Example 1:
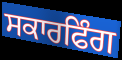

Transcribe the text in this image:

ਸਕਾਰਫਿੰਗ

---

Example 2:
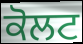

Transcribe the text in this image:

ਕੋਲਟ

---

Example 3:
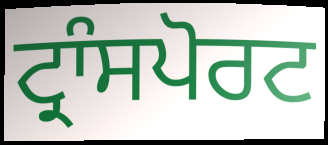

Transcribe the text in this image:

ਟ੍ਰਾੰਸਪੋਰਟ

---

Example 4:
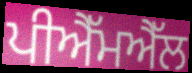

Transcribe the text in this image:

ਪੀਐੱਮਐੱਲ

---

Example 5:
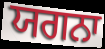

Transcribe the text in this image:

ਯਗਨਾ